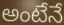
అంటేనే